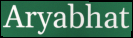
Aryabhat